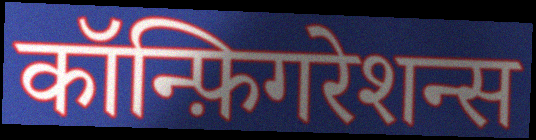
कॉन्फ़िगरेशन्स